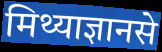
मिथ्याज्ञानसे